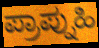
ಪ್ರಾಪ್ನುಹಿ